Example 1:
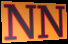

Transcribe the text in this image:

NN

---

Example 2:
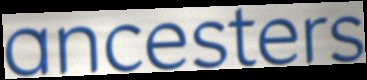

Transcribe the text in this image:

ancesters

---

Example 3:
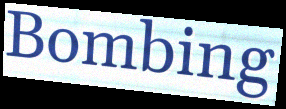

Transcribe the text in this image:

Bombing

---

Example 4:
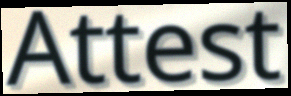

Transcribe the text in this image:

Attest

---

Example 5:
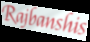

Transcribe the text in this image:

Rajbanshis